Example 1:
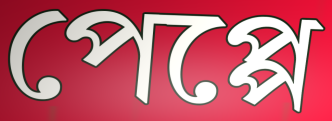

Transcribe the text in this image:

পেপ্পে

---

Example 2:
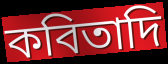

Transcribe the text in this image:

কবিতাদি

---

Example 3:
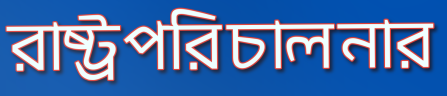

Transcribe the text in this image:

রাষ্ট্রপরিচালনার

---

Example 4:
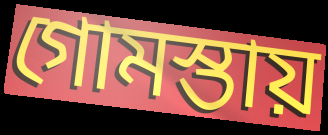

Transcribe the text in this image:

গোমস্তায়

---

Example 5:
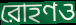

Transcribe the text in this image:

রোহণও